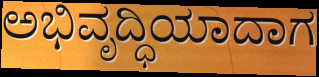
ಅಭಿವೃದ್ಧಿಯಾದಾಗ